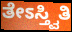
ತೇಽಸ್ತ್ವಿತಿ